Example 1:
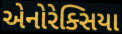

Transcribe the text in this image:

એનોરેક્સિયા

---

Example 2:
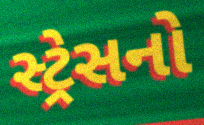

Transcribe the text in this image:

સ્ટ્રેસનો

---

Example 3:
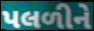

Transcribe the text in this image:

પલળીને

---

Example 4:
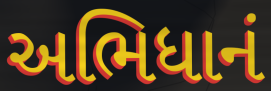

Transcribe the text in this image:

અભિધાનં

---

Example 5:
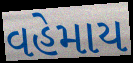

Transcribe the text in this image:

વહેમાય